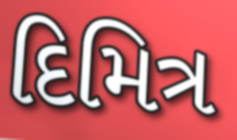
દિમિત્ર